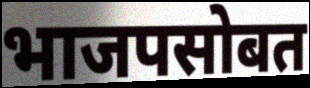
भाजपसोबत